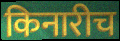
किनारीच